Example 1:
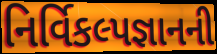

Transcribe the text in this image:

નિર્વિકલ્પજ્ઞાનની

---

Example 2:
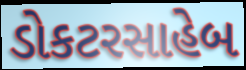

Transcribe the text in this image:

ડોકટરસાહેબ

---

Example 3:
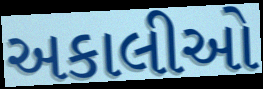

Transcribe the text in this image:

અકાલીઓ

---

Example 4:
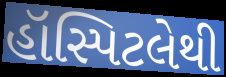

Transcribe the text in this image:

હૉસ્પિટલેથી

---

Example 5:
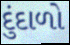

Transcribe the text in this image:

દુંદાળો